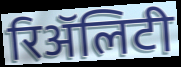
रिॲलिटी